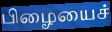
பிழையைச்